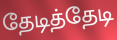
தேடித்தேடி